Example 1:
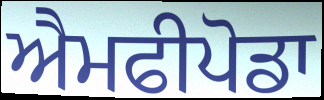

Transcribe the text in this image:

ਐਮਫੀਪੋਡਾ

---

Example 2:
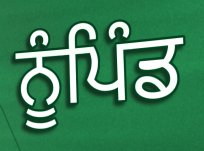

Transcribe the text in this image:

ਨੂੰਪਿੰਡ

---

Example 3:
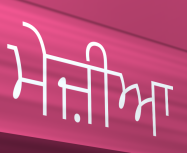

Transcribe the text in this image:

ਮੇਜ਼ੀਆ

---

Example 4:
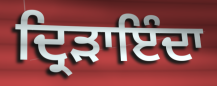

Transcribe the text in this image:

ਦ੍ਰਿੜਾਇੰਦਾ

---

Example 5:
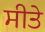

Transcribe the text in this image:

ਸੀਤੇ